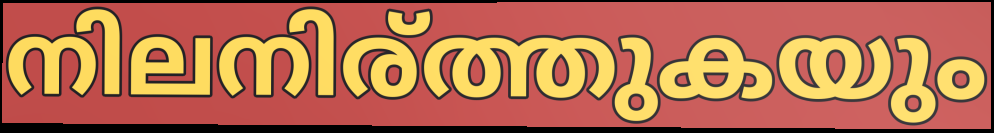
നിലനിര്ത്തുകയും